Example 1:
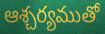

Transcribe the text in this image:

ఆశ్చర్యముతో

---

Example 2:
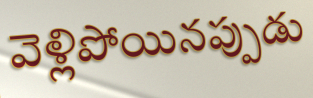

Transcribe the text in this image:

వెళ్లిపోయినప్పుడు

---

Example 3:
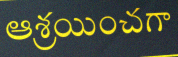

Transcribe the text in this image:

ఆశ్రయించగా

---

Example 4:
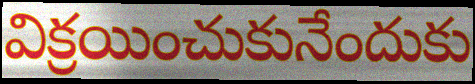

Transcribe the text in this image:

విక్రయించుకునేందుకు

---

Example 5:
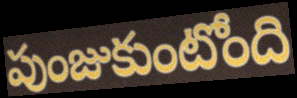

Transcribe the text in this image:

పుంజుకుంటోంది